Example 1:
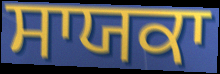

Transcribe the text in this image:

ਸਾਯਕਾ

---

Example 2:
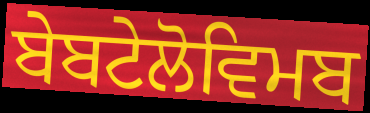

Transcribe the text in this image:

ਬੇਬਟੇਲੋਵਿਮਬ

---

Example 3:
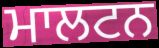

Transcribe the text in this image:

ਮਾਲਟਨ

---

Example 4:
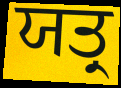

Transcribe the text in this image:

ਯਤ੍ਰ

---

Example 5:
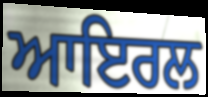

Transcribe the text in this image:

ਆਇਰਲ